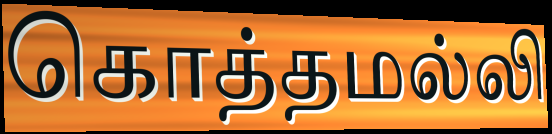
கொத்தமல்லி